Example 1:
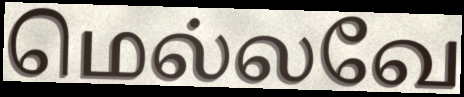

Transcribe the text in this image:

மெல்லவே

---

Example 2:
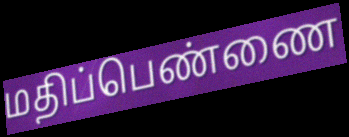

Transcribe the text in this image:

மதிப்பெண்ணை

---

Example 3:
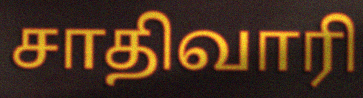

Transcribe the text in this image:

சாதிவாரி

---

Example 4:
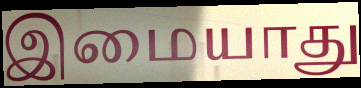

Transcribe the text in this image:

இமையாது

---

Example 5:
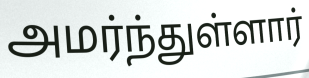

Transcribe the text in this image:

அமர்ந்துள்ளார்